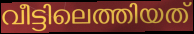
വീട്ടിലെത്തിയത്